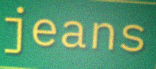
jeans